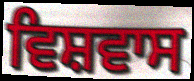
ਵਿਸ਼ਵਾਸ